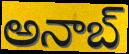
అనాబ్